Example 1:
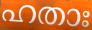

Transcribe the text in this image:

ഹതാഃ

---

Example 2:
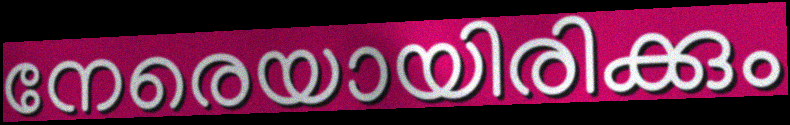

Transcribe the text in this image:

നേരെയായിരിക്കും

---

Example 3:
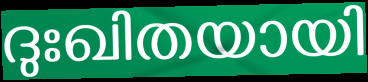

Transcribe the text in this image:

ദുഃഖിതയായി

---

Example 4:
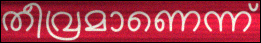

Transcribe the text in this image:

തീവ്രമാണെന്ന്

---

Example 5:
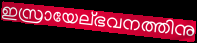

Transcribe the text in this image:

ഇസ്രായേല്ഭവനത്തിനു